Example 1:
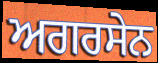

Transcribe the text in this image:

ਅਗਰਸੇਨ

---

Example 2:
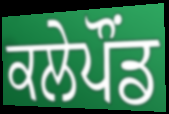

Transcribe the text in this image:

ਕਲੇਪੌਂਡ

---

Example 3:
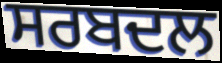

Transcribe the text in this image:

ਸਰਬਦਲ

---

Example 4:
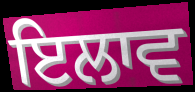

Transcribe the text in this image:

ਇਲਾਵ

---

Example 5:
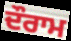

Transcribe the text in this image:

ਦੌਰਾਮ